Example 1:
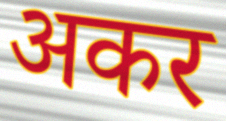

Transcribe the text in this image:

अकर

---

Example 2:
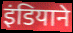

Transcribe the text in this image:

इंडियाने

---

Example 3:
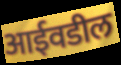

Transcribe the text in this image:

आईवडील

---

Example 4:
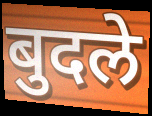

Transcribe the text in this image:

बुदले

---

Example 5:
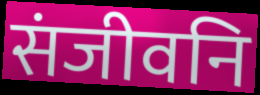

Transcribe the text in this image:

संजीवनि